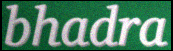
bhadra